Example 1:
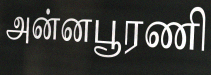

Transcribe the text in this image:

அன்னபூரணி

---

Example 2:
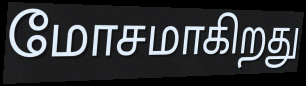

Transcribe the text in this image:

மோசமாகிறது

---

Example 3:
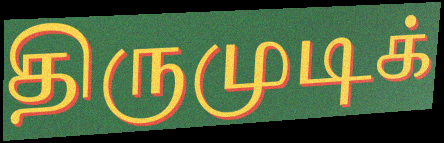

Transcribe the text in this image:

திருமுடிக்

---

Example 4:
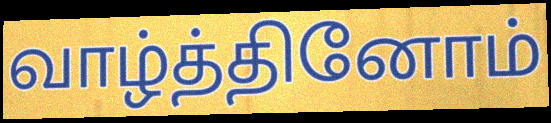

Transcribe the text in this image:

வாழ்த்தினோம்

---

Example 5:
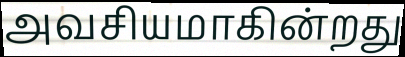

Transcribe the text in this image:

அவசியமாகின்றது